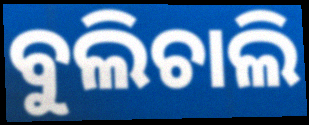
ବୁଲିଚାଲି